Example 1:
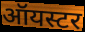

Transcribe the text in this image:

ऑयस्टर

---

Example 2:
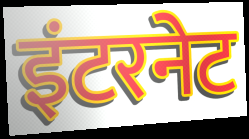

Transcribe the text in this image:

इंटरनेट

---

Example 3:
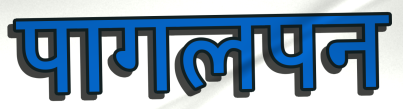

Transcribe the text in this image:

पागलपन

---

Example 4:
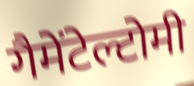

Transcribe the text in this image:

गैमेंटेल्टोमी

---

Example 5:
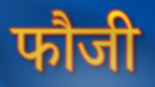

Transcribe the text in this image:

फौजी